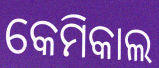
କେମିକାଲ